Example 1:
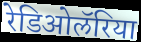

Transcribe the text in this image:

रेडिओलॅरिया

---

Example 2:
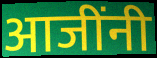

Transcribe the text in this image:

आजींनी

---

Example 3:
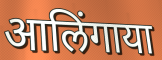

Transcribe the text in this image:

आलिंगाया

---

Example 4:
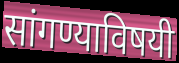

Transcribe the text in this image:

सांगण्याविषयी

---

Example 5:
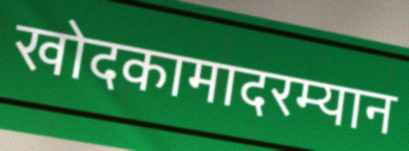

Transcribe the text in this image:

खोदकामादरम्यान